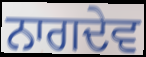
ਨਾਗਦੇਵ